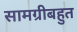
सामग्रीबहुत